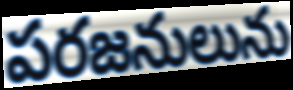
పరజనులును